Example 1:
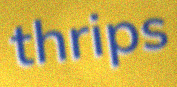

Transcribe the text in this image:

thrips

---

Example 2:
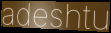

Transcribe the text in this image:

adeshtu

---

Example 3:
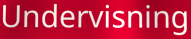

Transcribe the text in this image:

Undervisning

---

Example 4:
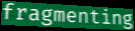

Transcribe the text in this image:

fragmenting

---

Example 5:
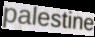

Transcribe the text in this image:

palestine